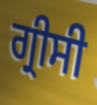
ਗ੍ਰੀਸੀ